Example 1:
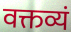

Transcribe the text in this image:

वक्तव्यं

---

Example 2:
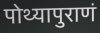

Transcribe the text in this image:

पोथ्यापुराणं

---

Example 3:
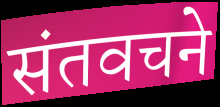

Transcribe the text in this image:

संतवचने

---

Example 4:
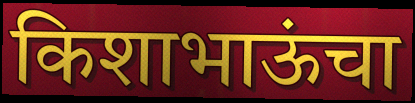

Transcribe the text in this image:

किशाभाऊंचा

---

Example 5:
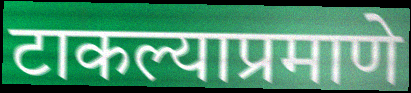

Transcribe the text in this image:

टाकल्याप्रमाणे